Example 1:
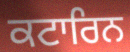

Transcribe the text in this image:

ਕਟਾਰਿਨ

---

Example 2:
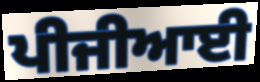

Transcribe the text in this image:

ਪੀਜੀਆਈ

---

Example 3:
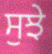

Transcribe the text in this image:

ਸੁਝੇ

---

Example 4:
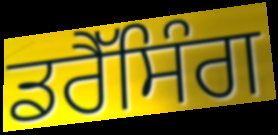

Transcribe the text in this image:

ਡਰੈੱਸਿੰਗ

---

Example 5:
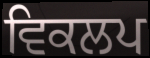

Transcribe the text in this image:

ਵਿਕਲਪ